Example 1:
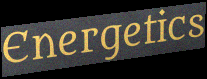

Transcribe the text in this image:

Energetics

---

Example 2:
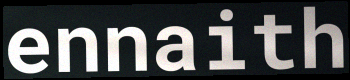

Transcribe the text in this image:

ennaith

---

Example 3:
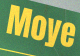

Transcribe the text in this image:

Moye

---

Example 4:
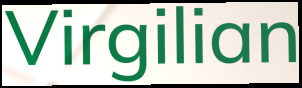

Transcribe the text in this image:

Virgilian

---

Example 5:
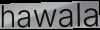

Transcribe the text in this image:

hawala